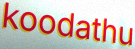
koodathu